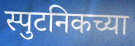
स्पुटनिकच्या